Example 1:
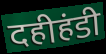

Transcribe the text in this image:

दहीहंडी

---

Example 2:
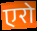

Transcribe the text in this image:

एरो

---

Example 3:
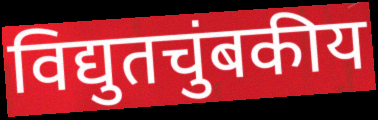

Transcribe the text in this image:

विद्युतचुंबकीय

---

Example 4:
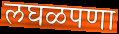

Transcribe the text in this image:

लघळपणा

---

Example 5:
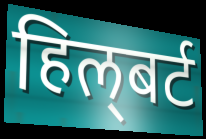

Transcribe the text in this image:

हिल्बर्ट